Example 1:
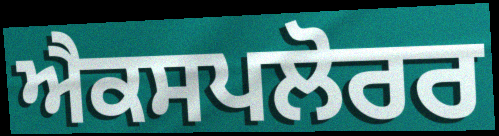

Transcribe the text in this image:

ਐਕਸਪਲੋਰਰ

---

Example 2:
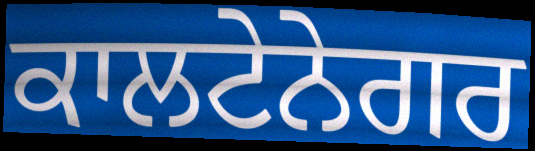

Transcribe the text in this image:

ਕਾਲਟੇਨੇਗਰ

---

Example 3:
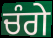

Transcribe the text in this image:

ਚੰਗੇ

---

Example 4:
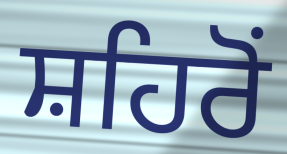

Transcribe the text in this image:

ਸ਼ਹਿਰੋਂ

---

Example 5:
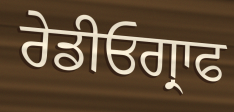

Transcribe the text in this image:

ਰੇਡੀਓਗ੍ਰਾਫ